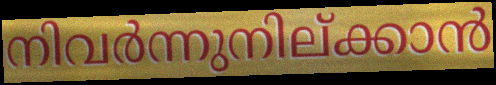
നിവർന്നുനില്ക്കാൻ